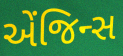
એંજિન્સ